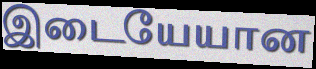
இடையேயான